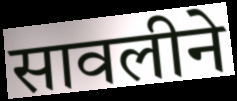
सावलीने